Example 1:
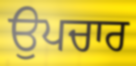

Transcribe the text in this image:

ਉਪਚਾਰ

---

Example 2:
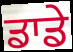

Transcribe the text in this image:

ਡਾਡੇ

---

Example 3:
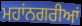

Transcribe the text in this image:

ਮਹਾਂਨਗਰੀਆਂ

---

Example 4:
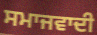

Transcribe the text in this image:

ਸਮਾਜਵਾਦੀ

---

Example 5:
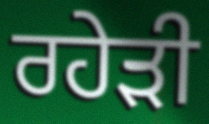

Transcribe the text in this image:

ਰਹੇੜੀ